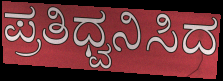
ಪ್ರತಿಧ್ವನಿಸಿದ